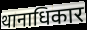
थानाधिकार